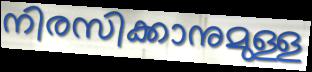
നിരസിക്കാനുമുള്ള